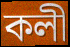
কলী